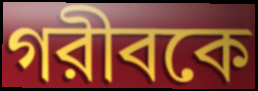
গরীবকে